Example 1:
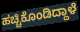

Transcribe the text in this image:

ಹಚ್ಚಿಕೊಂಡಿದ್ದಾಳೆ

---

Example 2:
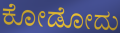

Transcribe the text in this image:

ಕೋಡೋದು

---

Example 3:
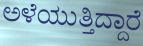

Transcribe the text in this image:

ಅಳೆಯುತ್ತಿದ್ದಾರೆ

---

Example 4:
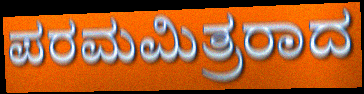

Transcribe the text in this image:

ಪರಮಮಿತ್ರರಾದ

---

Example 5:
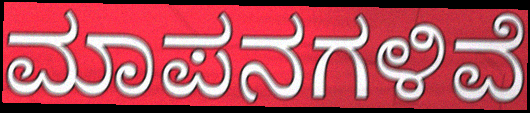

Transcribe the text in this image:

ಮಾಪನಗಳಿವೆ